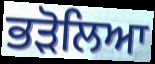
ਭੜੋਲਿਆ